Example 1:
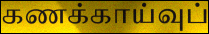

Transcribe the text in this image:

கணக்காய்வுப்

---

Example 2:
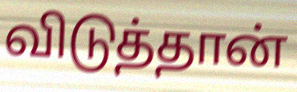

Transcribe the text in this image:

விடுத்தான்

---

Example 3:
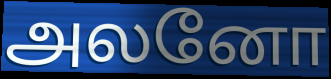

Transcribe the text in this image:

அலனோ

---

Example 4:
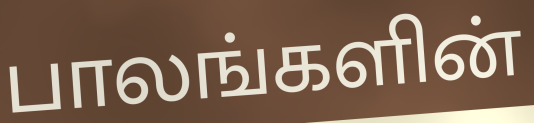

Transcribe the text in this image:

பாலங்களின்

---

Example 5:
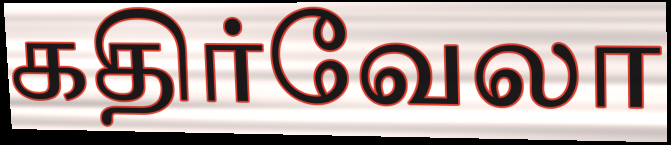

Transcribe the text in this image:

கதிர்வேலா